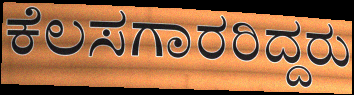
ಕೆಲಸಗಾರರಿದ್ದರು